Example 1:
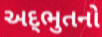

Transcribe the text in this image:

અદ્‌ભુતનો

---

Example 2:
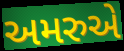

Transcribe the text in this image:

અમરુએ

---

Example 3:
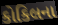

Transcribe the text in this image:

કોકિલના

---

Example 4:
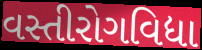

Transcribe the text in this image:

વસ્તીરોગવિદ્યા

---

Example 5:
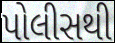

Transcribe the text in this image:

પોલીસથી